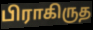
பிராகிருத